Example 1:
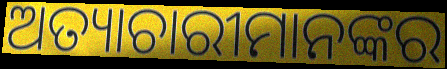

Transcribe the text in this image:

ଅତ୍ୟାଚାରୀମାନଙ୍କର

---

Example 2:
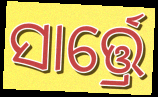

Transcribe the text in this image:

ସାର୍ତ୍ତ୍ରେ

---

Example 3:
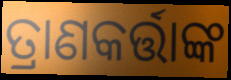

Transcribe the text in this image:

ତ୍ରାଣକର୍ତ୍ତାଙ୍କ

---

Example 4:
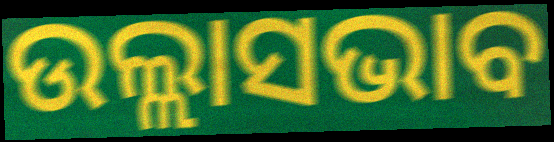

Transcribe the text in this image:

ଉଲ୍ଲାସଭାବ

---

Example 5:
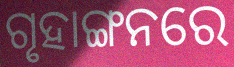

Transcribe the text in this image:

ଗୃହାଙ୍ଗନରେ